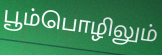
பூம்பொழிலும்